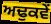
ਅਢੁਕਵੇਂ